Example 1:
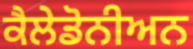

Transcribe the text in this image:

ਕੈਲੇਡੋਨੀਅਨ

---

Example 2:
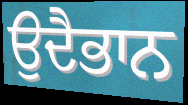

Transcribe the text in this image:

ਉਦੈਭਾਨ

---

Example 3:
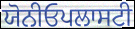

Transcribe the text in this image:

ਯੋਨੀਓਪਲਾਸਟੀ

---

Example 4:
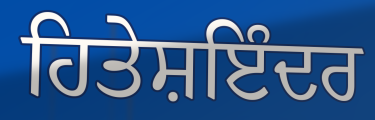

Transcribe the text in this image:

ਹਿਤੇਸ਼ਇੰਦਰ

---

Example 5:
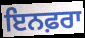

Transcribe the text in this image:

ਇਨਫ਼ਰਾ